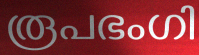
രൂപഭംഗി